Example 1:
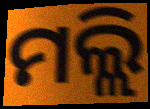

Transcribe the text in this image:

ମଲ୍ଲି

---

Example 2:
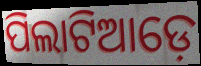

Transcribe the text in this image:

ପିଲାଟିଆଡ଼େ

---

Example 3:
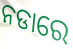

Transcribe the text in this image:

ନଡାରେ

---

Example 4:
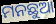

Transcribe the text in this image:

ମନଛୁଆ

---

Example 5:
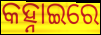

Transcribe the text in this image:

କହ୍ନାଇରେ